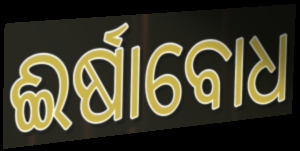
ଈର୍ଷାବୋଧ